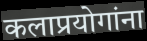
कलाप्रयोगांना